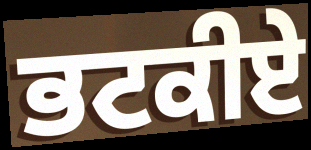
ਭਟਕੀਏ